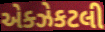
એક્ઝેકટલી